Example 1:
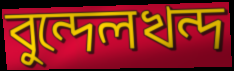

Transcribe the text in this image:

বুন্দেলখন্দ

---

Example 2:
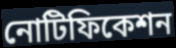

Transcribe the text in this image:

নোটিফিকেশন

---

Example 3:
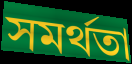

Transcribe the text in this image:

সমর্থতা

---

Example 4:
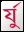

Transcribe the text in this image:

র্যু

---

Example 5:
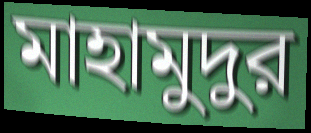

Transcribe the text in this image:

মাহামুদুর